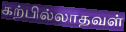
கற்பில்லாதவள்